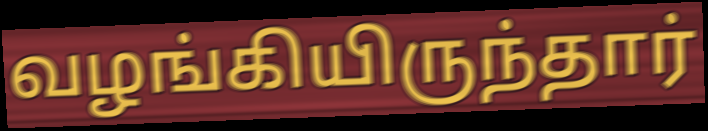
வழங்கியிருந்தார்